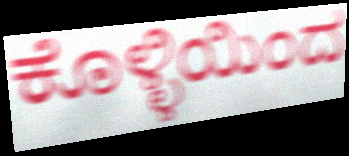
ಕೊಳ್ಳಿಯಿಂದ